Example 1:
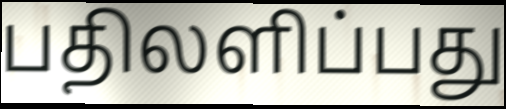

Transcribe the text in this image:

பதிலளிப்பது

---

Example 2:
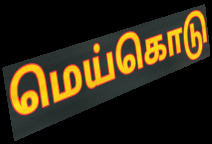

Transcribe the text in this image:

மெய்கொடு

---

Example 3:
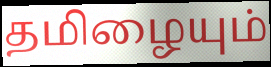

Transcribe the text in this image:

தமிழையும்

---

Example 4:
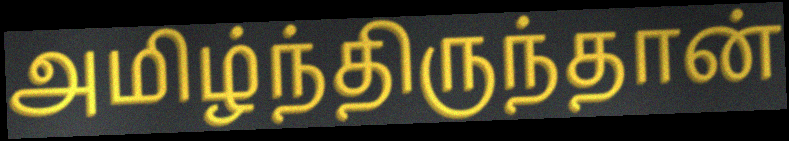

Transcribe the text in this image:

அமிழ்ந்திருந்தான்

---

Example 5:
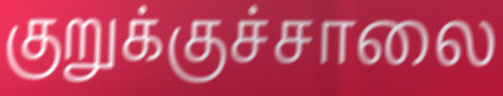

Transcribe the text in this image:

குறுக்குச்சாலை